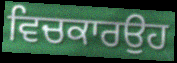
ਵਿਚਕਾਰਉਹ